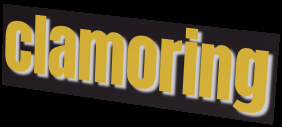
clamoring